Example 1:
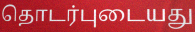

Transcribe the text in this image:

தொடர்புடையது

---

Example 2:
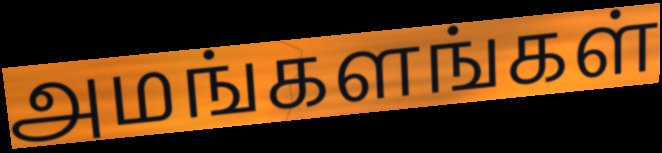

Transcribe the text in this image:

அமங்களங்கள்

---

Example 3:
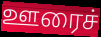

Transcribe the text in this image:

ஊரைச்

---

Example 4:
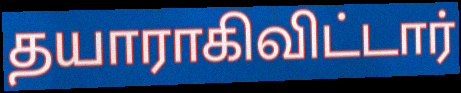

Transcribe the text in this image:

தயாராகிவிட்டார்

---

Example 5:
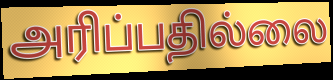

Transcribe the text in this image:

அரிப்பதில்லை